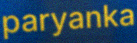
paryanka